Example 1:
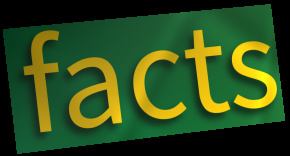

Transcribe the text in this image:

facts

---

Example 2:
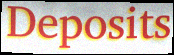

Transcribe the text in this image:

Deposits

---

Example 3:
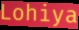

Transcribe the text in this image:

Lohiya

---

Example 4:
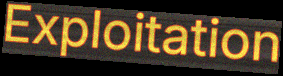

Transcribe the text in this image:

Exploitation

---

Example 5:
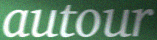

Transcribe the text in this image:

autour